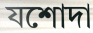
যশোদা